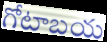
గోటాబయ